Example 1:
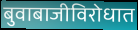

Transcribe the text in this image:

बुवाबाजीविरोधात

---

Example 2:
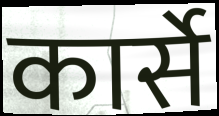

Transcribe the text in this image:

कार्से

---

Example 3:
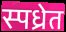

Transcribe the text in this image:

स्पध्रेत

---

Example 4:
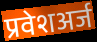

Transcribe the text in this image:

प्रवेशअर्ज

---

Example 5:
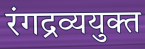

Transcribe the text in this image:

रंगद्रव्ययुक्त